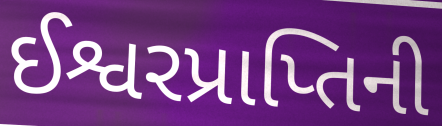
ઈશ્વરપ્રાપ્તિની